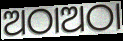
ଅଠାଅଠା